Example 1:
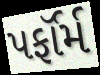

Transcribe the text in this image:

પર્ફૉર્મ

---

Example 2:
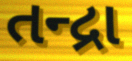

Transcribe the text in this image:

તન્દ્રા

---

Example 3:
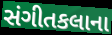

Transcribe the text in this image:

સંગીતકલાના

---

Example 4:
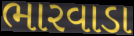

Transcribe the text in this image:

ભારવાડા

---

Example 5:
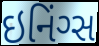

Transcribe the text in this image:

ઇનિંગ્સ